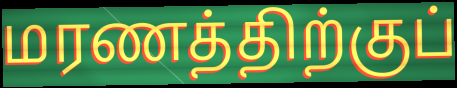
மரணத்திற்குப்